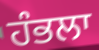
ਹੰਭਲਾ